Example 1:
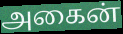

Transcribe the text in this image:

அகைன்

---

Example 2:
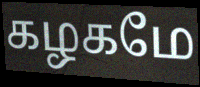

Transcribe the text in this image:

கழகமே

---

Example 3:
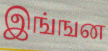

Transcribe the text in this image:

இங்ஙன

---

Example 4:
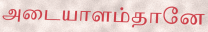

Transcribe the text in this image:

அடையாளம்தானே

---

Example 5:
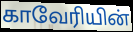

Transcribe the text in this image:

காவேரியின்